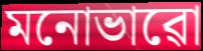
মনোভাৱো